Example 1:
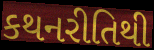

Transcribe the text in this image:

કથનરીતિથી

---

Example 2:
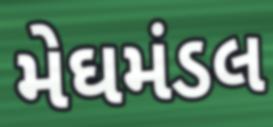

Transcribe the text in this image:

મેઘમંડલ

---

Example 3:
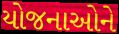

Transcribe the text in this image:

યોજનાઓને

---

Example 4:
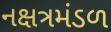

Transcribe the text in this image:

નક્ષત્રમંડળ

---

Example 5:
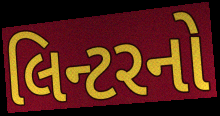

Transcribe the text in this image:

લિન્ટરનો